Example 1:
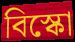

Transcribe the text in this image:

বিস্কো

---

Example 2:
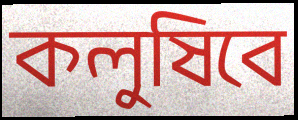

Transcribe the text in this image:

কলুষিবে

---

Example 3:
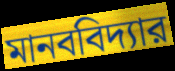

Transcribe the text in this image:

মানববিদ্যার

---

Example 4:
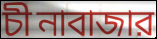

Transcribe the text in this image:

চীনাবাজার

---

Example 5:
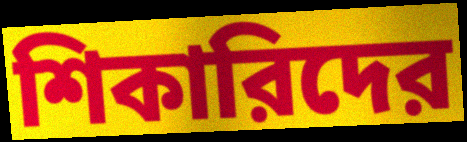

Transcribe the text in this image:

শিকারিদের